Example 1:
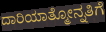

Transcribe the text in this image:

ದಾರಿಯಾತ್ಮೋನ್ನತಿಗೆ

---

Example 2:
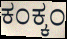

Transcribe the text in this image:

ಕಂಕ್ಕಂ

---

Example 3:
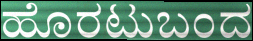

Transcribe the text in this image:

ಹೊರಟುಬಂದ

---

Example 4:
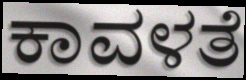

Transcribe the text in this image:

ಕಾವಳತೆ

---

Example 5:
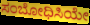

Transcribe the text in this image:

ಸಂಬೋಧಿಸಿಯೇ